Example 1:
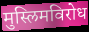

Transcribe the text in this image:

मुस्लिमविरोध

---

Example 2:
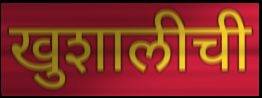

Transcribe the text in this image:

खुशालीची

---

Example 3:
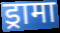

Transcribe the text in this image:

ड्रामा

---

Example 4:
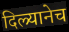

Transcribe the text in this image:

दिल्यानेच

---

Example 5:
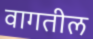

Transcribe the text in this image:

वागतील